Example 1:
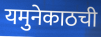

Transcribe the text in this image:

यमुनेकाठची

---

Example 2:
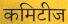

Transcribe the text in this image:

कमिटीज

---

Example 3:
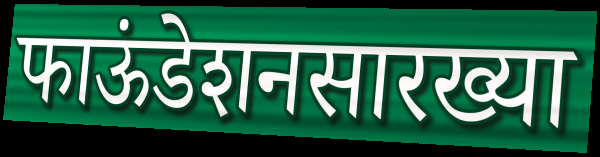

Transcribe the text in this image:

फाऊंडेशनसारख्या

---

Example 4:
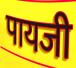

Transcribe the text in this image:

पायजी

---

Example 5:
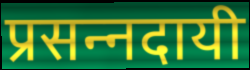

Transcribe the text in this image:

प्रसन्नदायी